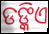
ଡଙ୍କିଏ